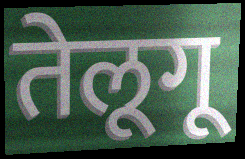
तेलूगू